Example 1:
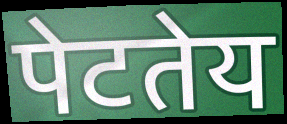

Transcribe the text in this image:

पेटतेय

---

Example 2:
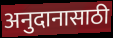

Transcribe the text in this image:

अनुदानासाठी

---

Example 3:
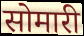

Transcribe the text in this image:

सोमारी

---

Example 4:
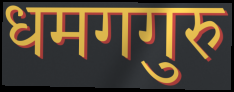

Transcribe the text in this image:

धमगगुरु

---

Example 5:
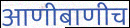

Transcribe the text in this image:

आणीबाणीच